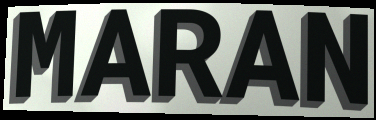
MARAN